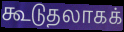
கூடுதலாகக்